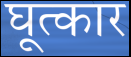
घूत्कार